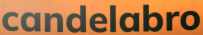
candelabro